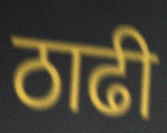
ठाढी